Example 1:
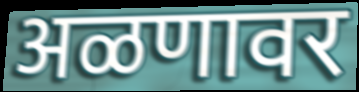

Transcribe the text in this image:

अळणावर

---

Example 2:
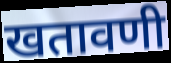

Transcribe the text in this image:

खतावणी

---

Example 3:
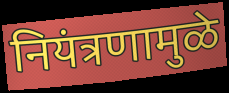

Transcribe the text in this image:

नियंत्रणामुळे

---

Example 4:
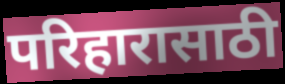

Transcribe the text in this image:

परिहारासाठी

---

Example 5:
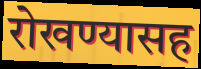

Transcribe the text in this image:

रोखण्यासह